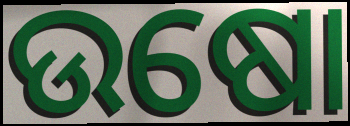
ଉଷୋ